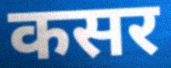
कसर